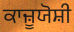
ਕਾਜ਼ੂਯੋਸ਼ੀ